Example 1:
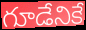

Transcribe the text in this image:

గూడేనికే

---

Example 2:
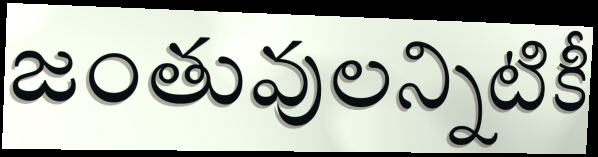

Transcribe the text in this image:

జంతువులన్నిటికీ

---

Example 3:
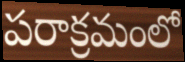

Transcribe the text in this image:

పరాక్రమంలో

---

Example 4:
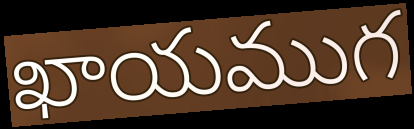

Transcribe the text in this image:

ఖాయముగ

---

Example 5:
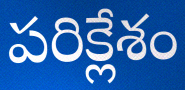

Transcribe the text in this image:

పరిక్లేశం